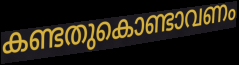
കണ്ടതുകൊണ്ടാവണം